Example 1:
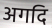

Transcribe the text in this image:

अगदि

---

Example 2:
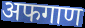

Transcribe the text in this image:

अफगाण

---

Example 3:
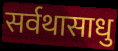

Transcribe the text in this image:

सर्वथासाधु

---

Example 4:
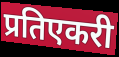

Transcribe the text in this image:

प्रतिएकरी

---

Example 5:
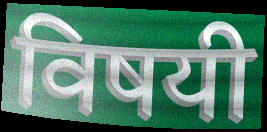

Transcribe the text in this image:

विषयी